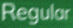
Regular